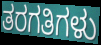
ತರಗತಿಗಳು